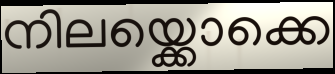
നിലയ്ക്കൊക്കെ